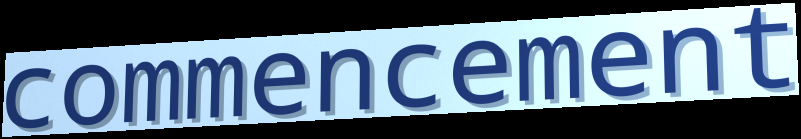
commencement